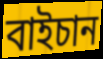
বাইচান